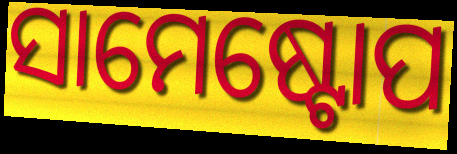
ସାମେଷ୍ଟୋପ